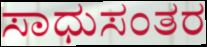
ಸಾಧುಸಂತರ